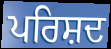
ਪਰਿਸ਼ਦ